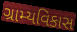
ગ્રામ્યવિકાસ